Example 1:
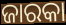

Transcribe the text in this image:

ଜାରକା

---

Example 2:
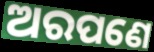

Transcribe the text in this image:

ଅରପଣେ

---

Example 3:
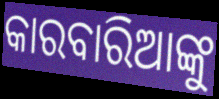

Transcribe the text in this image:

କାରବାରିଆଙ୍କୁ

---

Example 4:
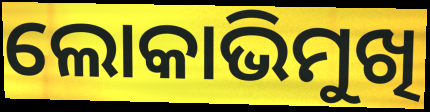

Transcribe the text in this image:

ଲୋକାଭିମୁଖି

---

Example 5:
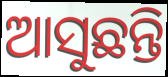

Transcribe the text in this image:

ଆସୁଛନ୍ତି